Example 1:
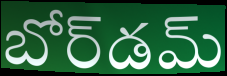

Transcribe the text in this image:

బోర్‌డమ్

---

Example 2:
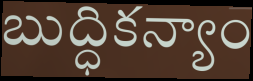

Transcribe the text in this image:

బుద్ధికన్యాం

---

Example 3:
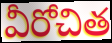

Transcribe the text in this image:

వీరోచిత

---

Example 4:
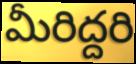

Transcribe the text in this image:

మీరిద్దరి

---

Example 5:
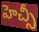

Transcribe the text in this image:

హెచ్సీ